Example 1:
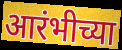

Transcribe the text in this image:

आरंभीच्या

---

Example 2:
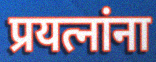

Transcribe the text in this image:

प्रयत्नांना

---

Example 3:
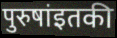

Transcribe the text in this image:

पुरुषांइतकी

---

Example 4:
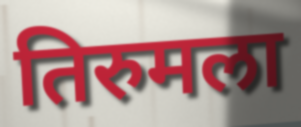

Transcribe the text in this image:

तिरुमला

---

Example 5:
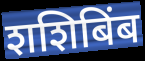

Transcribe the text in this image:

शशिबिंब